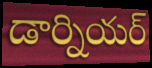
డార్నియర్